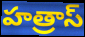
హత్రాస్